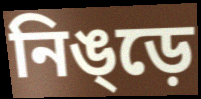
নিঙ্ড়ে